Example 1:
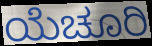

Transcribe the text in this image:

ಯೆಚೂರಿ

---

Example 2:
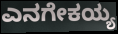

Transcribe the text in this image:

ಎನಗೇಕಯ್ಯ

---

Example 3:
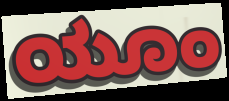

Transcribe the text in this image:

ಯೂಂ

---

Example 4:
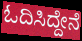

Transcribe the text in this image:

ಓದಿಸಿದ್ದೇನೆ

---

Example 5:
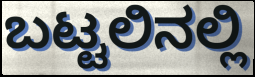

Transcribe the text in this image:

ಬಟ್ಟಲಿನಲ್ಲಿ